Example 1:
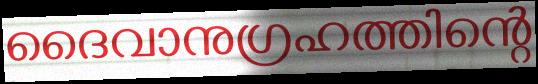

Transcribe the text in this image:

ദൈവാനുഗ്രഹത്തിന്റെ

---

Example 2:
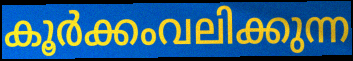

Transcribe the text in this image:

കൂർക്കംവലിക്കുന്ന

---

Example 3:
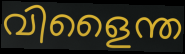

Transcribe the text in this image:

വിളൈന്ത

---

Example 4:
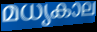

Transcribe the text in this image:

മധ്യകാല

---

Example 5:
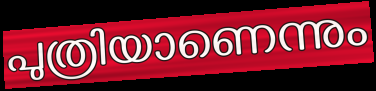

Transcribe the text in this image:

പുത്രിയാണെന്നും